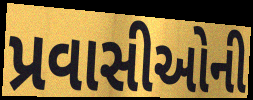
પ્રવાસીઓની